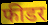
फीडर